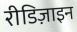
रीडिज़ाइन